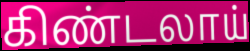
கிண்டலாய்